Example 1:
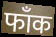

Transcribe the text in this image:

फाँक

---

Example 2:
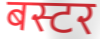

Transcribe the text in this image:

बस्टर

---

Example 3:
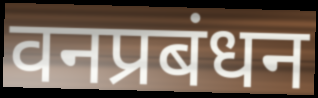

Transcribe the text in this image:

वनप्रबंधन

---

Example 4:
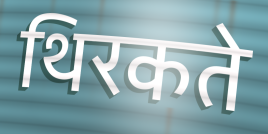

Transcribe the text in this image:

थिरकते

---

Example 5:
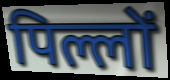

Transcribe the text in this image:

पिल्लों